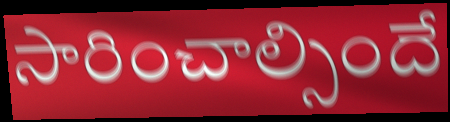
సారించాల్సిందే